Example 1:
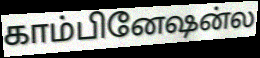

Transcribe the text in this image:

காம்பினேஷன்ல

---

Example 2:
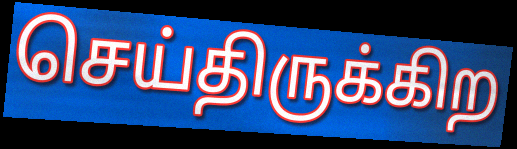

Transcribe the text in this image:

செய்திருக்கிற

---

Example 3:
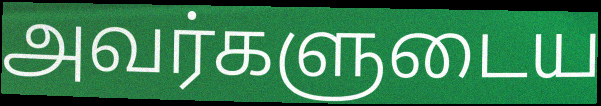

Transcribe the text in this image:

அவர்களுடைய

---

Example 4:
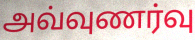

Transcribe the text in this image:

அவ்வுணர்வு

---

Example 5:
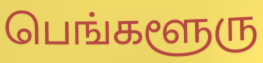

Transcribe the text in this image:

பெங்களூரு